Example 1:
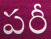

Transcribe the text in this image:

పరీ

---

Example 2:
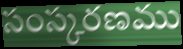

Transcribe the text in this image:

సంస్కరణము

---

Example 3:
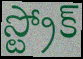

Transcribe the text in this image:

స్ట్రోక్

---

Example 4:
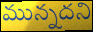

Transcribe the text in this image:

మున్నదని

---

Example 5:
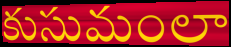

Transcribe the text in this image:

కుసుమంలా